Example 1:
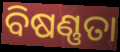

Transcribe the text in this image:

ବିଷଣ୍ଣତା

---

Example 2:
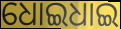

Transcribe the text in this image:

ଧୋଇଧାଇ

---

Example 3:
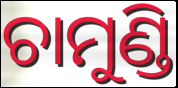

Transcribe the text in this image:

ଚାମୁଣ୍ଡି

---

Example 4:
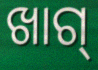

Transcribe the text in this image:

ଖାଗ୍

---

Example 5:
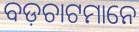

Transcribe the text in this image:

ବଡ଼ଚାଟମାନେ